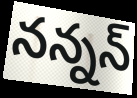
నన్నన్